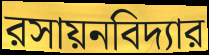
রসায়নবিদ্যার